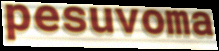
pesuvoma